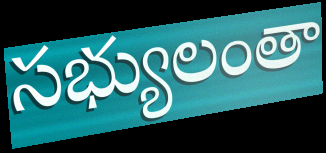
సభ్యులంతా